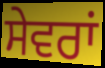
ਸੇਵਰਾਂ